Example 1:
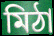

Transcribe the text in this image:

মিঠা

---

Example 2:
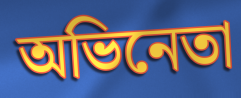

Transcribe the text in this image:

অভিনেতা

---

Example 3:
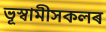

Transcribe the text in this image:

ভূস্বামীসকলৰ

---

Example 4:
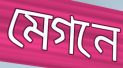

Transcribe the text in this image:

মেগনে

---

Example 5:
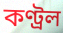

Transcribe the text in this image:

কণ্ট্ৰল